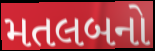
મતલબનો